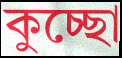
কুচ্ছো